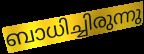
ബാധിച്ചിരുന്നു